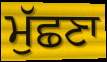
ਮੁੱਛਣਾ